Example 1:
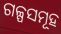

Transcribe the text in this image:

ଗଳ୍ପସମୂହ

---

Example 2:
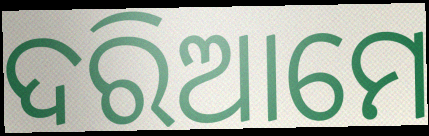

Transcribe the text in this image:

ଦରିଆମେ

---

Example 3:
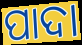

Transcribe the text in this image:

ପାଦା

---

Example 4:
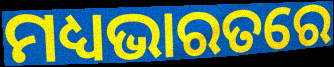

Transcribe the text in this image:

ମଧ୍ୟଭାରତରେ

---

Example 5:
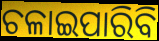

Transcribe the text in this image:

ଚଳାଇପାରିବି